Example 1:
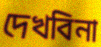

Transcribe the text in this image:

দেখবিনা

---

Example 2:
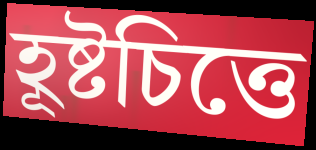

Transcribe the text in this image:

হূষ্টচিত্তে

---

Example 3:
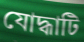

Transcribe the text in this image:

যোদ্ধাটি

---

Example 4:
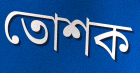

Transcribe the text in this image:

তোশক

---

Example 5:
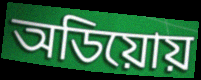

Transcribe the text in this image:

অডিয়োয়